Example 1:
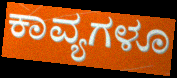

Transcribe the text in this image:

ಕಾವ್ಯಗಳೂ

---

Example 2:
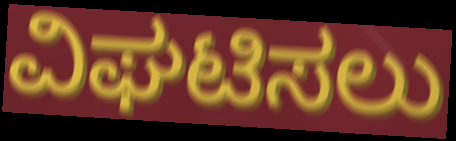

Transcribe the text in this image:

ವಿಘಟಿಸಲು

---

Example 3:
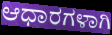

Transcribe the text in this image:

ಆಧಾರಗಳಾಗಿ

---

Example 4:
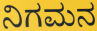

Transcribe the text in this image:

ನಿಗಮನ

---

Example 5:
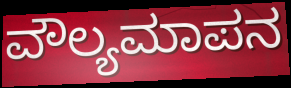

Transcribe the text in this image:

ವೌಲ್ಯಮಾಪನ